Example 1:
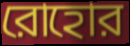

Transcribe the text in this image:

রোহোর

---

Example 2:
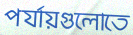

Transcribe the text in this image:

পর্যায়গুলোতে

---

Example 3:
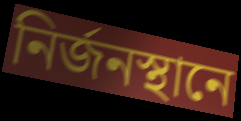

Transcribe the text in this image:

নির্জনস্থানে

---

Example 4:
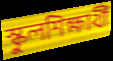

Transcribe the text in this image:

স্কুলশিক্ষার্থী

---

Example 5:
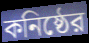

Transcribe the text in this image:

কনিষ্ঠের